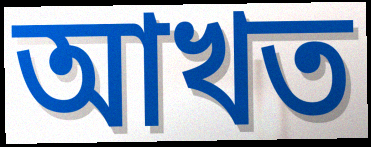
আখত